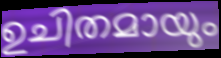
ഉചിതമായും